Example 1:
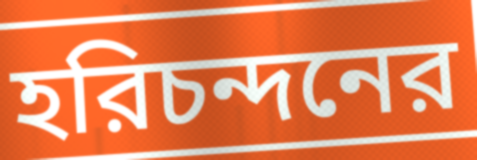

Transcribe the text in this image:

হরিচন্দনের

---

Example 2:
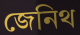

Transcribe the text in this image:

জেনিথ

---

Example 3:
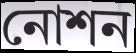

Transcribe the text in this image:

নোশন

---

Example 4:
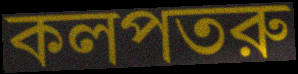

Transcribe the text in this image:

কলপতরু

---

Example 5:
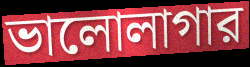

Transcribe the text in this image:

ভালোলাগার